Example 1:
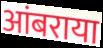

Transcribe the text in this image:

आंबराया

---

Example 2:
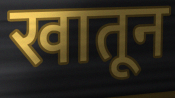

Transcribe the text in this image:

खातून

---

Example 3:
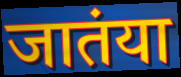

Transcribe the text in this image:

जातंया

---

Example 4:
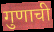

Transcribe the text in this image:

गुणाची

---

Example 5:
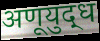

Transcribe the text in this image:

अणूयुद्ध